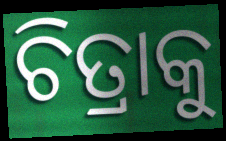
ଚିତ୍ରାକୁ